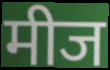
मीज